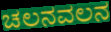
ಚಲನವಲನ